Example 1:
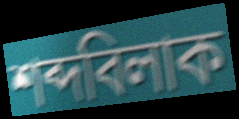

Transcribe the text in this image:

শব্দবিলাক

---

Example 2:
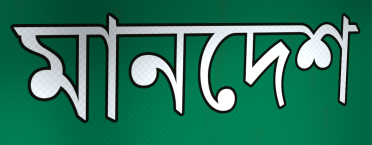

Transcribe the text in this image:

মানদেশ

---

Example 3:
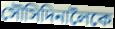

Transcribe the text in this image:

সৌসিদিনালৈকে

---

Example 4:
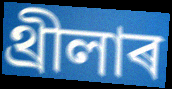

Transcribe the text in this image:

থ্ৰীলাৰ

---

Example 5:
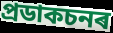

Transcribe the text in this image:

প্ৰডাকচনৰ